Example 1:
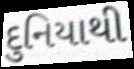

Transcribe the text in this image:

દુનિયાથી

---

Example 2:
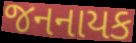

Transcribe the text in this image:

જનનાયક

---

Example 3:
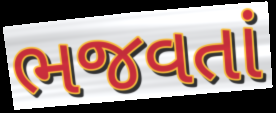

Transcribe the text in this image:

ભજવતાં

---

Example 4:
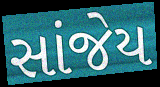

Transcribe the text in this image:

સાંજેય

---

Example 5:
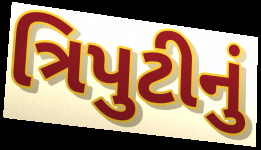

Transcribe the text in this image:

ત્રિપુટીનું